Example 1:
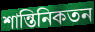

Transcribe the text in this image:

শান্তিনিকতন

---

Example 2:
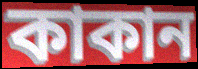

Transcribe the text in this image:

কাকান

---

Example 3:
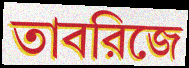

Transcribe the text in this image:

তাবরিজে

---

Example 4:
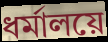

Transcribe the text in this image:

ধর্মালয়ে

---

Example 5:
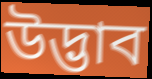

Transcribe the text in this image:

উদ্ভাব